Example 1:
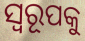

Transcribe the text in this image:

ସ୍ବରୂପକୁ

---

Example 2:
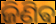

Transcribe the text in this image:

ଜିଣିଵ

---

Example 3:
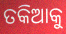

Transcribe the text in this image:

ତକିଆକୁ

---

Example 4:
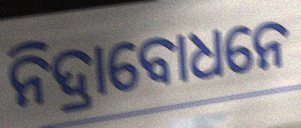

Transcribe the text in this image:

ନିଦ୍ରାବୋଧନେ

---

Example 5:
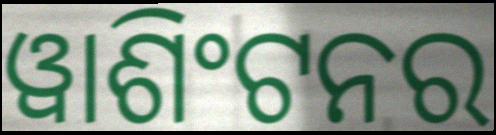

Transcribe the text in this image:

ୱାଶିଂଟନର